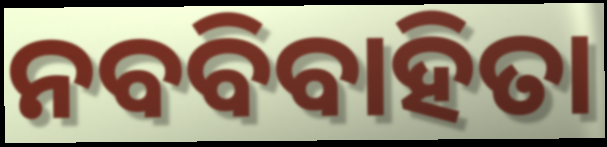
ନବବିବାହିତା